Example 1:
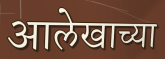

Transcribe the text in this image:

आलेखाच्या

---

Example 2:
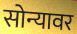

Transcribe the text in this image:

सोन्यावर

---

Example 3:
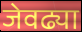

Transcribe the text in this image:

जेवढ्या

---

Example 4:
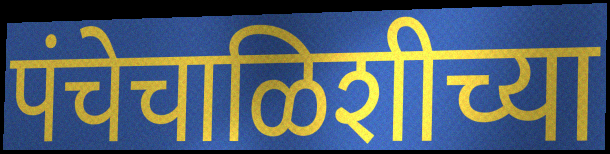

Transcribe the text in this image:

पंचेचाळिशीच्या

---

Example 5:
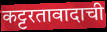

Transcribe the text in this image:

कट्टरतावादाची